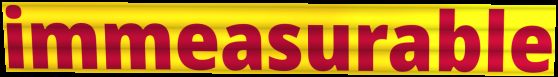
immeasurable